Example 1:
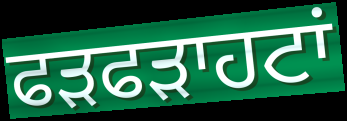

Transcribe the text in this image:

ਫੜਫੜਾਹਟਾਂ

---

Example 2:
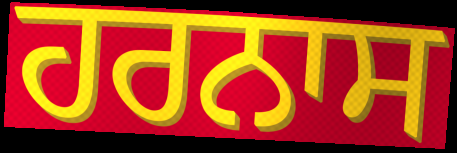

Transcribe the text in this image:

ਹਰਨਾਸ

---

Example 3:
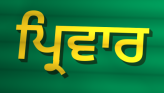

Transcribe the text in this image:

ਪ੍ਰਿਵਾਰ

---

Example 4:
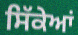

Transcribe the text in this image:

ਸਿੱਕੇਆਂ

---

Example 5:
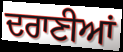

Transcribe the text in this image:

ਦਰਾਣੀਆਂ